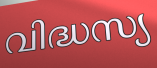
വിദ്ധസ്യ